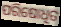
ପରିଷୋଧିତ